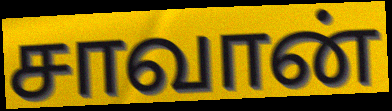
சாவான்